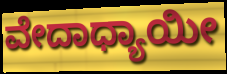
ವೇದಾಧ್ಯಾಯೀ